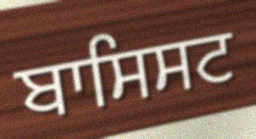
ਬਾਸਿਸਟ